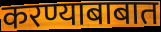
करण्याबाबात